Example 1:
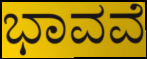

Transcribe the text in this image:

ಭಾವವೆ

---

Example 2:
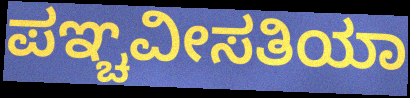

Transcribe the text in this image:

ಪಞ್ಚವೀಸತಿಯಾ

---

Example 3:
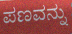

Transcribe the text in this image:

ಪಣವನ್ನು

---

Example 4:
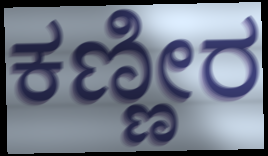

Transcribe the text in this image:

ಕಣ್ಣೀರ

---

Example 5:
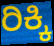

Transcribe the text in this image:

ರಿಕ್ಕಿ